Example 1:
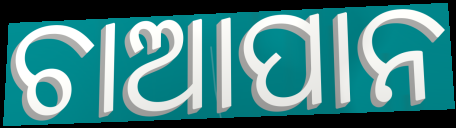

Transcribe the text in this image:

ଚାଆପାନ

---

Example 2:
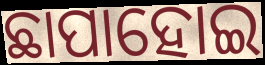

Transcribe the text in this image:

ଛାପାହୋଇ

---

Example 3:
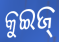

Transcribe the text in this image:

କୁଇଜ୍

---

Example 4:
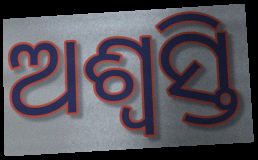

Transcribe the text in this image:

ଅଶ୍ୱସ୍ତି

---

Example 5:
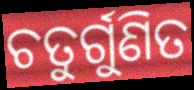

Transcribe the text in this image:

ଚତୁର୍ଗୁଣିତ